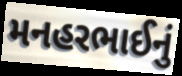
મનહરભાઈનું